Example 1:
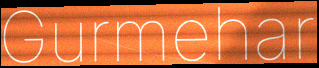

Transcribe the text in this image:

Gurmehar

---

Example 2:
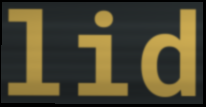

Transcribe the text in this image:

lid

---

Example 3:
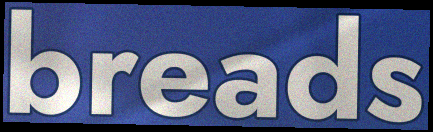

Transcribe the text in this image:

breads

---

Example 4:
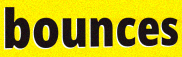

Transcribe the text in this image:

bounces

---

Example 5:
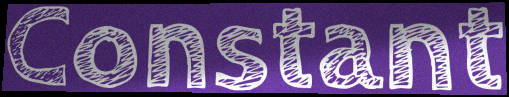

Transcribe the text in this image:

Constant